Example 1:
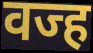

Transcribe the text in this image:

वज्ह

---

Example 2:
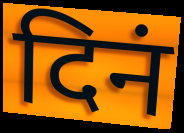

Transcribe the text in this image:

दिनं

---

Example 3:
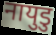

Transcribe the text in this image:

नायुडु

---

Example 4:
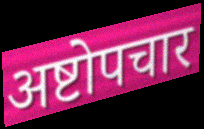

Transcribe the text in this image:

अष्टोपचार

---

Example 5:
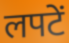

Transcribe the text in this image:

लपटें